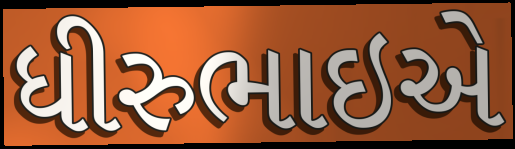
ધીરુભાઇએ